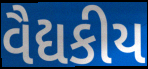
વૈદ્યકીય